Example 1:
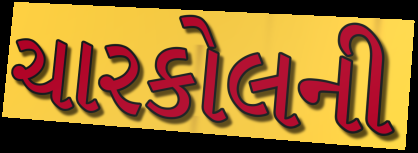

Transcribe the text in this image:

ચારકોલની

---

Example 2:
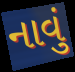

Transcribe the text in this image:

નાવું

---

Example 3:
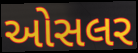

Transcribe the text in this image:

ઓસલર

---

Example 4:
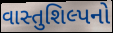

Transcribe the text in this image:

વાસ્તુશિલ્પનો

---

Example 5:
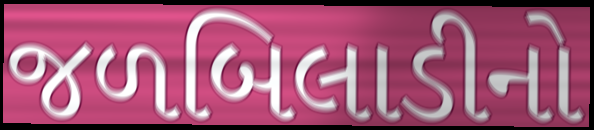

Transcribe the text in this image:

જળબિલાડીનો